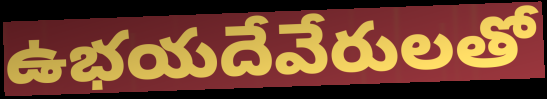
ఉభయదేవేరులతో